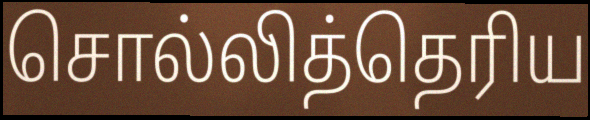
சொல்லித்தெரிய